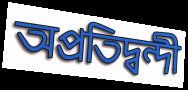
অপ্ৰতিদ্বন্দী